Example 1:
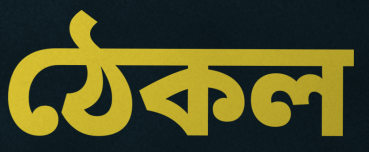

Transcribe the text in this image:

ঠেকল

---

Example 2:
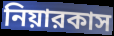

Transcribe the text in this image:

নিয়ারকাস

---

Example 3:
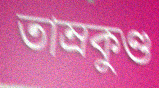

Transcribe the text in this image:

তাম্রকুণ্ড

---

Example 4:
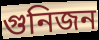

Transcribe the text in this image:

গুনিজন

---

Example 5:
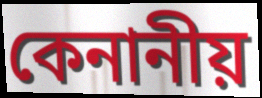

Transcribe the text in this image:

কেনানীয়